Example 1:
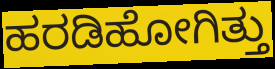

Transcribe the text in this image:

ಹರಡಿಹೋಗಿತ್ತು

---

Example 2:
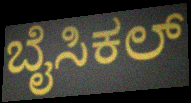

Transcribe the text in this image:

ಬೈಸಿಕಲ್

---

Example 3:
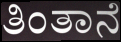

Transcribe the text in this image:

ತಿಂತಾನೆ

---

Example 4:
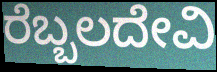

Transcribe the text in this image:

ರೆಬ್ಬಲದೇವಿ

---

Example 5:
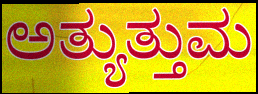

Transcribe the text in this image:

ಅತ್ಯುತ್ತುಮ